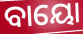
ବାୟୋ